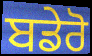
ਬਡੇਰੋ